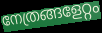
നേത്രങ്ങളേറ്റം